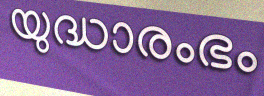
യുദ്ധാരംഭം